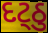
દટ્ઠુ